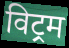
विट्रम